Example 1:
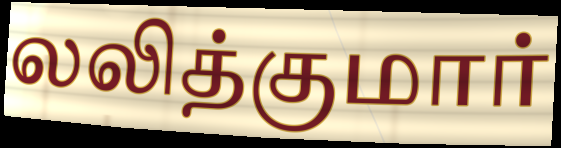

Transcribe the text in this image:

லலித்குமார்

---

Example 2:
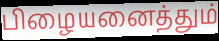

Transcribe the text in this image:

பிழையனைத்தும்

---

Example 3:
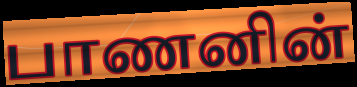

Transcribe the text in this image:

பாணனின்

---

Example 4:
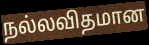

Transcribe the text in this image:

நல்லவிதமான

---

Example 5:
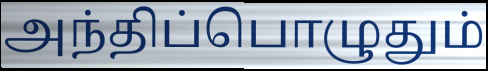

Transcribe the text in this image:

அந்திப்பொழுதும்